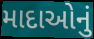
માદાઓનું